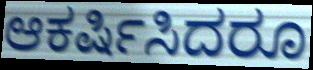
ಆಕರ್ಷಿಸಿದರೂ